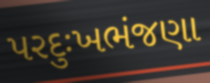
પરદુઃખભંજણા